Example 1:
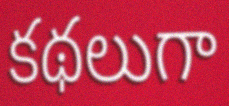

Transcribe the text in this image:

కథలుగా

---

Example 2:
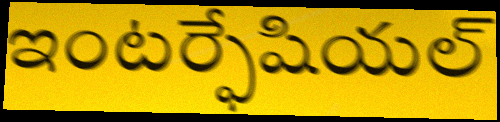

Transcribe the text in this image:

ఇంటర్ఫేషియల్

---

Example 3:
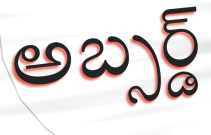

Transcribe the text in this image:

అబ్సర్డ్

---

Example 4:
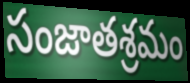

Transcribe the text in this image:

సంజాతశ్రమం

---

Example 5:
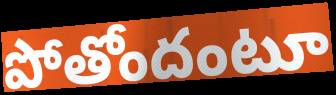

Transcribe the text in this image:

పోతోందంటూ